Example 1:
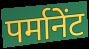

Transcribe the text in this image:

पर्मानेंट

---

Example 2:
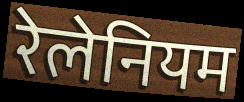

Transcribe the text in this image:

रेलेनियम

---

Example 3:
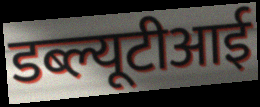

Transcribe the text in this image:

डब्ल्यूटीआई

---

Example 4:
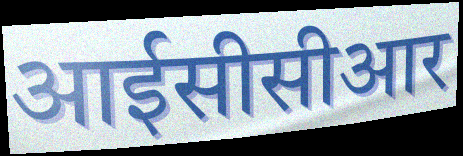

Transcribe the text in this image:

आईसीसीआर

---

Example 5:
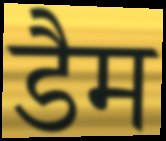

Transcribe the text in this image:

डैम